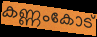
കണ്ണംകോട്